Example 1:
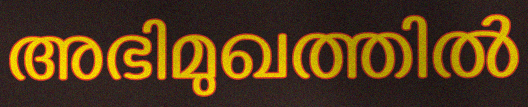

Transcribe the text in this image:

അഭിമുഖത്തിൽ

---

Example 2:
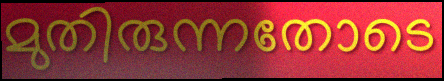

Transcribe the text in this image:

മുതിരുന്നതോടെ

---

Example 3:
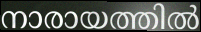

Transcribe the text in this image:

നാരായത്തിൽ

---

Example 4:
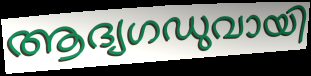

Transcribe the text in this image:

ആദ്യഗഡുവായി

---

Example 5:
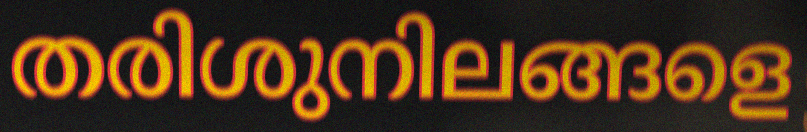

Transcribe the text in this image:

തരിശുനിലങ്ങളെ